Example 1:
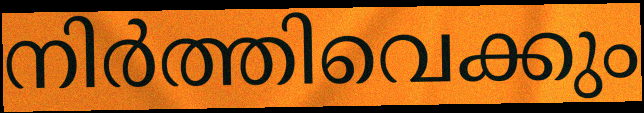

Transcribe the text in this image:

നിർത്തിവെക്കും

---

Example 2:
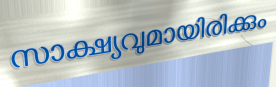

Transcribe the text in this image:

സാക്ഷ്യവുമായിരിക്കും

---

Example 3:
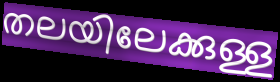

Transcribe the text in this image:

തലയിലേക്കുള്ള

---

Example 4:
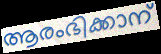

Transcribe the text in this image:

ആരംഭിക്കാന്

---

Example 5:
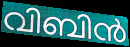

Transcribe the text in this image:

വിബിൻ